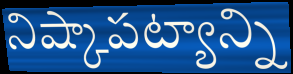
నిష్కాపట్యాన్ని